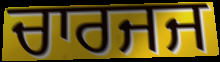
ਚਾਰਜਜ